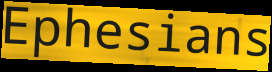
Ephesians